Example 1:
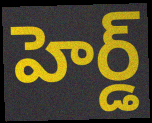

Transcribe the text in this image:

హెర్డ్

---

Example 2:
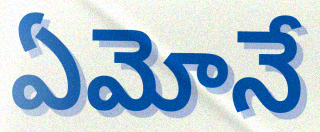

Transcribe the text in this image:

ఏమోనే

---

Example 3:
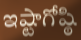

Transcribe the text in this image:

ఇష్టాగోష్ఠి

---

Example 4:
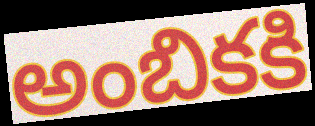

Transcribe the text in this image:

అంబికకి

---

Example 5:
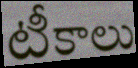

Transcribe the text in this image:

టీకాలు